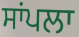
ਸਾਂਪਲਾ